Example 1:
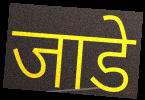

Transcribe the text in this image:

जाडे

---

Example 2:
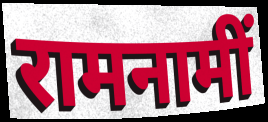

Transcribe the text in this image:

रामनामीं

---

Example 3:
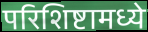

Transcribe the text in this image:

परिशिष्टामध्ये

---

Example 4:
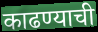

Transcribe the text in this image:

काढण्याची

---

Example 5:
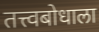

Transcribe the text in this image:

तत्त्वबोधाला